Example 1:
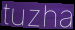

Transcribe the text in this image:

tuzha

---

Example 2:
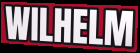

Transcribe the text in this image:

WILHELM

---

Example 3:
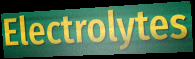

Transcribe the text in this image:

Electrolytes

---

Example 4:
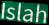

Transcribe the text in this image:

Islah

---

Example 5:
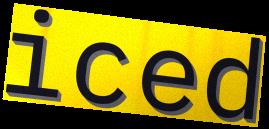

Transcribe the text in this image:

iced